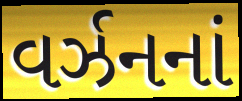
વર્ઝનનાં